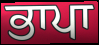
ਭਾਪਾ